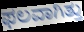
ಫಲವಾಗಿತ್ತು